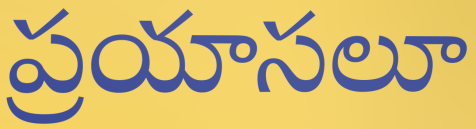
ప్రయాసలూ